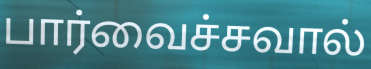
பார்வைச்சவால்